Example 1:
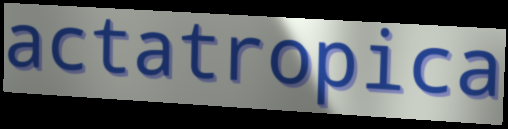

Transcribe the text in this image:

actatropica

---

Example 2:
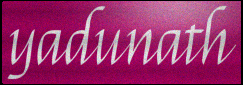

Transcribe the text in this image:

yadunath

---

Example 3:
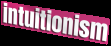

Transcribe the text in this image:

intuitionism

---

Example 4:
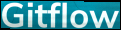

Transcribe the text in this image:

Gitflow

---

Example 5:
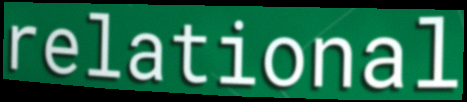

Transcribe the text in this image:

relational